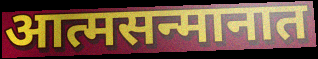
आत्मसन्मानात